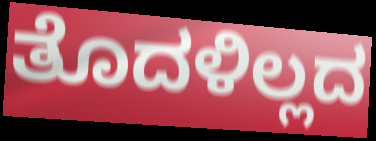
ತೊದಳಿಲ್ಲದ